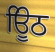
ਊਿਠ